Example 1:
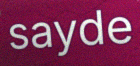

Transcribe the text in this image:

sayde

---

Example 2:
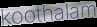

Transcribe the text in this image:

koothalam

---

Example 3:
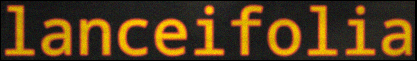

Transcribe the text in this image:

lanceifolia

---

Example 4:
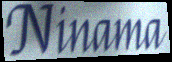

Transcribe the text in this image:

Ninama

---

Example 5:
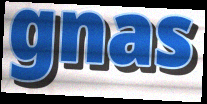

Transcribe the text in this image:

gnas